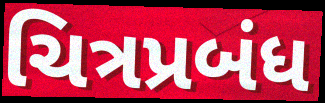
ચિત્રપ્રબંધ